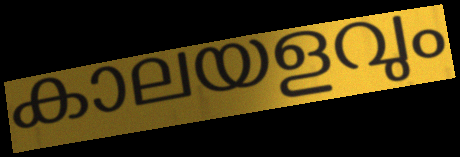
കാലയളവും